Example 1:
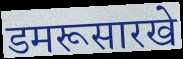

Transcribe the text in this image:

डमरूसारखे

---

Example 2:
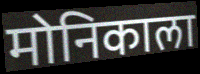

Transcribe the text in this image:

मोनिकाला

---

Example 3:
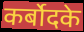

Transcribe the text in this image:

कर्बोदके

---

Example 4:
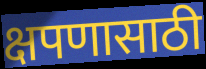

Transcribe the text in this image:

क्षपणासाठी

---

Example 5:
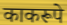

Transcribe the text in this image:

काकरूपे